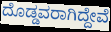
ದೊಡ್ಡವರಾಗಿದ್ದೇವೆ